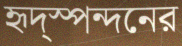
হৃদ্স্পন্দনের